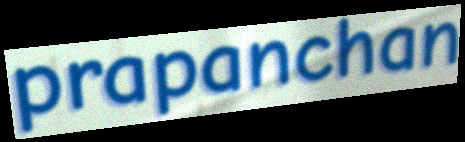
prapanchan